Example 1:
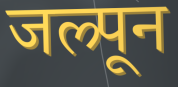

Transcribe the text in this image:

जल्पून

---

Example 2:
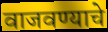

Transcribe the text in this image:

वाजवण्याचे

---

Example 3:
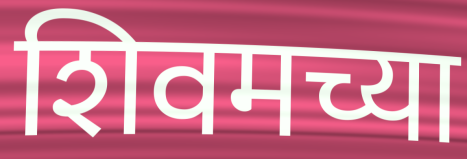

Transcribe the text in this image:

शिवमच्या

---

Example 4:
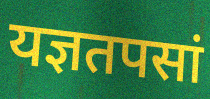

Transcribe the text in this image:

यज्ञतपसां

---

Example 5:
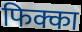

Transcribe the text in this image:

फिक्का